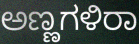
ಅಣ್ಣಗಳಿರಾ